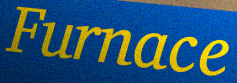
Furnace